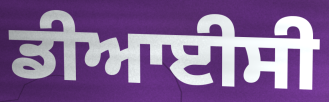
ਡੀਆਈਸੀ